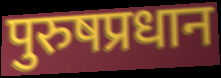
पुरुषप्रधान